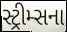
સ્ટ્રીમ્સના